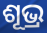
ଶୂଭ୍ର